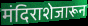
मंदिराशेजारून